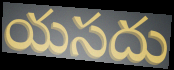
యసదు